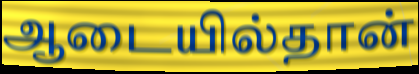
ஆடையில்தான்